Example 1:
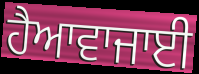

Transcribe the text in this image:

ਹੈਆਵਾਜਾਈ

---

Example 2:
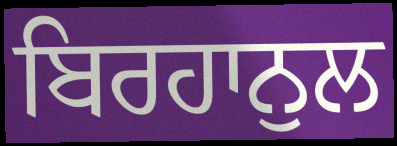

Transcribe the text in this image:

ਬਿਰਹਾਨੁਲ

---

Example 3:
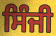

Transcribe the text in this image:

ਸਿੰਜੀ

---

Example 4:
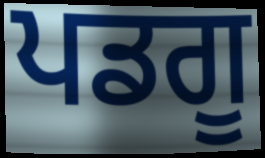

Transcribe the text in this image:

ਪਡਗੂ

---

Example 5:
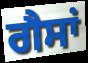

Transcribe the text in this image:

ਗੈਸਾਂ